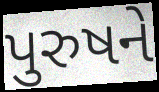
પુરુષને